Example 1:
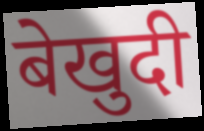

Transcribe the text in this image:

बेखुदी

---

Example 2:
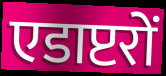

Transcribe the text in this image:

एडाप्टरों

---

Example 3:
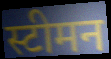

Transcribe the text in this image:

स्टीमन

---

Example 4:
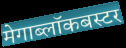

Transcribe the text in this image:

मेगाब्लॉकबस्टर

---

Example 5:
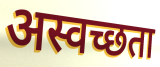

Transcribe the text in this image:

अस्वच्छता